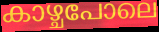
കാഴ്ചപോലെ